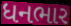
ધનભાર